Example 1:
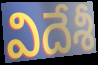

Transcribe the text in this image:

విదేశీ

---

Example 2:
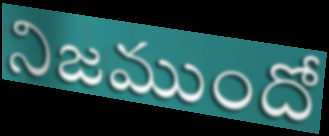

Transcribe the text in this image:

నిజముందో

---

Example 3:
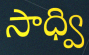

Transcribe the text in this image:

సాధ్వి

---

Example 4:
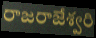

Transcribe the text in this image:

రాజరాజేశ్వరి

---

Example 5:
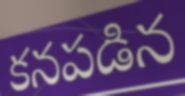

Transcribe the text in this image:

కనపడిన